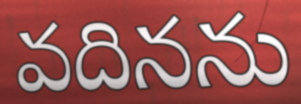
వదినను